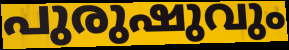
പുരുഷുവും